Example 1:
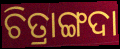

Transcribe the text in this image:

ଚିତ୍ରାଙ୍ଗଦା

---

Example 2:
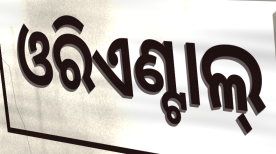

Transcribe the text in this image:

ଓରିଏଣ୍ଟାଲ୍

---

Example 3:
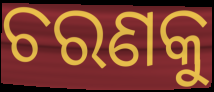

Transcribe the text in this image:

ଚରଣକୁ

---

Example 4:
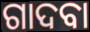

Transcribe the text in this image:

ଗାଦବା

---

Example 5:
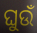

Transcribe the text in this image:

ଘୁଉଁ